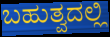
ಬಹುತ್ವದಲ್ಲಿ